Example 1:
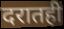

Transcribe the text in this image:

दरातही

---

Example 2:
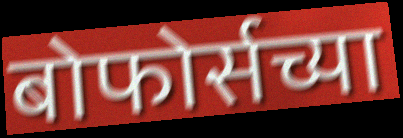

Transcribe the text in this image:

बोफोर्सच्या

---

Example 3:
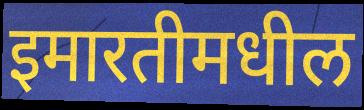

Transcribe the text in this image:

इमारतीमधील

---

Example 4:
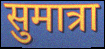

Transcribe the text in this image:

सुमात्रा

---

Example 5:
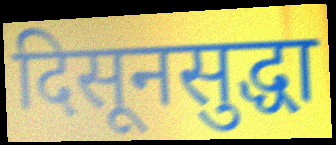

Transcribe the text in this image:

दिसूनसुद्धा